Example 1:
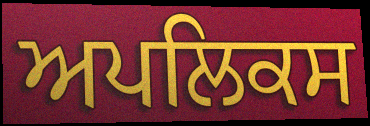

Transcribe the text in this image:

ਅਪਲਿਕਸ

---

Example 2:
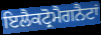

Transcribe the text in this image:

ਇਲੈਕਟ੍ਰੋਮੈਗਨੈਟਾਂ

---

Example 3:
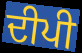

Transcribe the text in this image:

ਦੀਪੀ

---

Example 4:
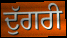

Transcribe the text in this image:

ਦੁੱਗਰੀ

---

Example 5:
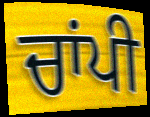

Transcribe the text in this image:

ਚਾਂਪੀ